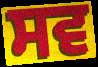
ਸਵ